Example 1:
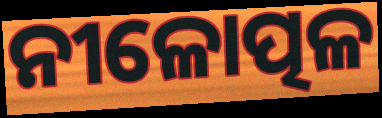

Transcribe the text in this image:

ନୀଳୋତ୍ପଳ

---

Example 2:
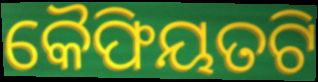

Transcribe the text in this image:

କୈଫିୟତଟି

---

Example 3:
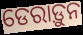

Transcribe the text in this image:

ଡେରାଡ଼ୁନ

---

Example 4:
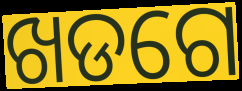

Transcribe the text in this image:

ଖଡଗେ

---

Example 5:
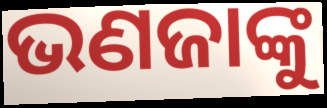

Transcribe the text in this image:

ଭଣଜାଙ୍କୁ